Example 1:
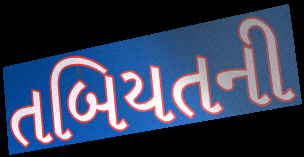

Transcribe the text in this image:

તબિયતની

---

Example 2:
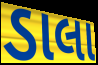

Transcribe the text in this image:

ડાલા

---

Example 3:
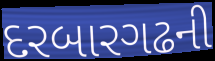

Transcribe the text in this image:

દરબારગઢની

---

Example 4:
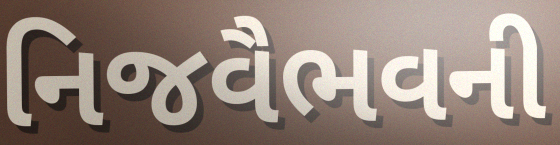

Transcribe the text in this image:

નિજવૈભવની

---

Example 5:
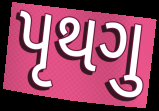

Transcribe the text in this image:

પૃથગુ